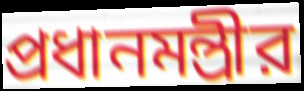
প্রধানমন্ত্রীর